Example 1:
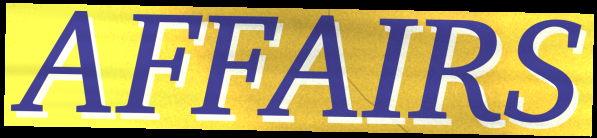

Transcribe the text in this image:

AFFAIRS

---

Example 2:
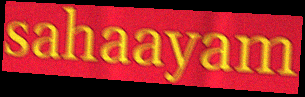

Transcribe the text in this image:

sahaayam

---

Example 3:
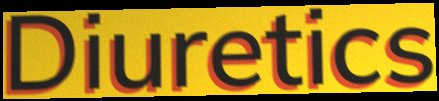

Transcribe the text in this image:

Diuretics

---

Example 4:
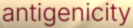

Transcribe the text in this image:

antigenicity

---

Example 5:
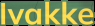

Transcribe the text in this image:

Ivakke